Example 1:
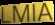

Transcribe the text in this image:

LMIA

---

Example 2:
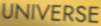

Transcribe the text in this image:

UNIVERSE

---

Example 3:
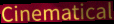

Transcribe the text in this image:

Cinematical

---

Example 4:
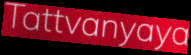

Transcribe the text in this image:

Tattvanyaya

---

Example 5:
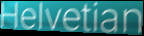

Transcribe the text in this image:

Helvetian